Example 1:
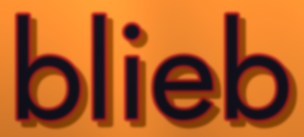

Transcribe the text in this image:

blieb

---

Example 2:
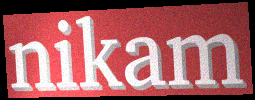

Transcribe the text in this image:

nikam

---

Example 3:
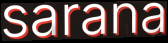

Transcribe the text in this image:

sarana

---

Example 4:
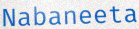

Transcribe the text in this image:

Nabaneeta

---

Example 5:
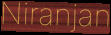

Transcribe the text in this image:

Niranjan